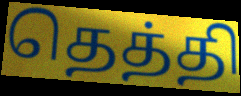
தெத்தி